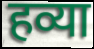
हव्या